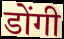
डोंगी